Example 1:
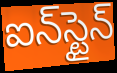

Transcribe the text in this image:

ఐన్‌స్టైన్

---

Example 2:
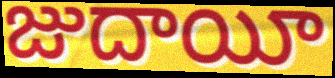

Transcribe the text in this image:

జుదాయీ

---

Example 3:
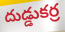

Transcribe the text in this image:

దుడ్డుకర్ర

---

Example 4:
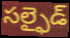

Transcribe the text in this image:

సల్ఫైడ్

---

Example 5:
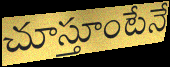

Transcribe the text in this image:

చూస్తూంటేనే